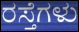
ರಸ್ತೆಗಳು